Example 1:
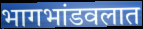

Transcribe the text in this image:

भागभांडवलात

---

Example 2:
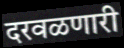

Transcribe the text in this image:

दरवळणारी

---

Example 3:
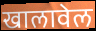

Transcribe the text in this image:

खालावेल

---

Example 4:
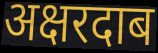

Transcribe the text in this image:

अक्षरदाब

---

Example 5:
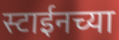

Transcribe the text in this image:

स्टाईनच्या